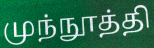
முந்நூத்தி